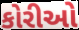
કોરીઓ